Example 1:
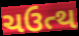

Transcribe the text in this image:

ચઉત્થ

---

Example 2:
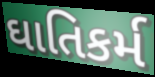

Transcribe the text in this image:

ઘાતિકર્મ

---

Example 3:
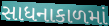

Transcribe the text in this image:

સાધનાકાળમાં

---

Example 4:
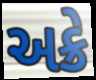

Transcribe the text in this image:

અક્રે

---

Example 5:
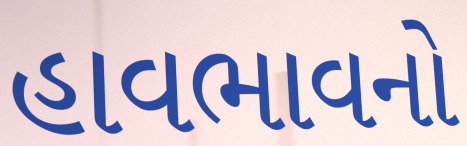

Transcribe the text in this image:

હાવભાવનો